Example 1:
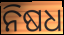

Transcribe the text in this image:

ନିଷଧ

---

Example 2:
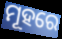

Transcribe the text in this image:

ମୂହରେ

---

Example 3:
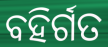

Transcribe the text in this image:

ବହିର୍ଗତ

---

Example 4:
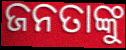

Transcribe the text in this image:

ଜନତାଙ୍କୁ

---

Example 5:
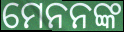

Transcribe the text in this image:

ମେନନଙ୍କ